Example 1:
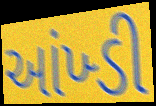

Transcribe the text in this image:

આંખ્ડી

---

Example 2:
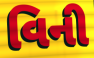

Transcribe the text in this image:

વિની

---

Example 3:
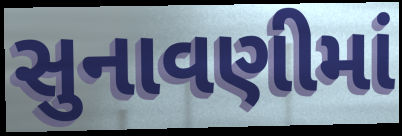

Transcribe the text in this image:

સુનાવણીમાં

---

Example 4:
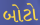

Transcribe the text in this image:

બોટો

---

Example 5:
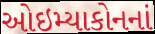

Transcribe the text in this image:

ઓઇમ્યાકોનનાં